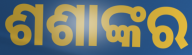
ଶଶାଙ୍କର